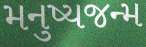
મનુષ્યજન્મ